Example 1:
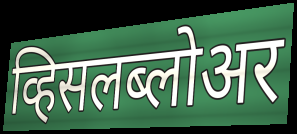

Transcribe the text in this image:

व्हिसलब्लोअर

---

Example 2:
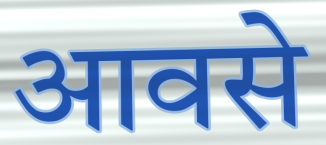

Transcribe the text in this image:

आवसे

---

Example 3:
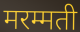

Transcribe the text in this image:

मरम्मती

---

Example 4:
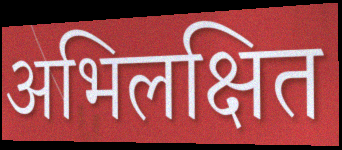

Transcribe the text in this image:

अभिलक्षित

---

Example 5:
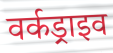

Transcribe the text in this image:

वर्कड्राइव